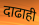
दाढाही